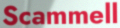
Scammell